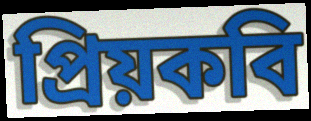
প্রিয়কবি